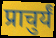
प्राचुर्यं